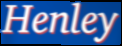
Henley